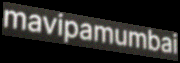
mavipamumbai